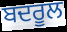
ਬਦਰੂਲ